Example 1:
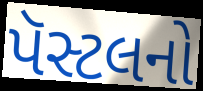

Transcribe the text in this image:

પૅસ્ટલનો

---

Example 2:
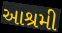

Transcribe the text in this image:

આશ્રમી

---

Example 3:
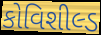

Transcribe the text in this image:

કોવિશીલ્ડ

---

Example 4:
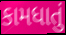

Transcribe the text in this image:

કામધાતું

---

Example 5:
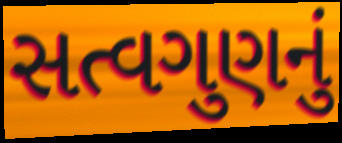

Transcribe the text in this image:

સત્વગુણનું